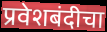
प्रवेशबंदीचा